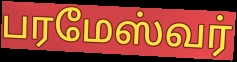
பரமேஸ்வர்